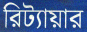
রিট্যায়ার